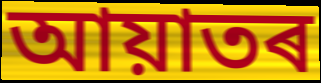
আয়াতৰ